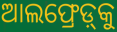
ଆଲଫ୍ରେଡ଼୍‍କୁ